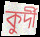
কুর্দী